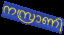
നസ്രാണി